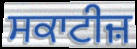
ਸਕਾਟੀਜ਼